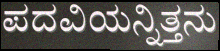
ಪದವಿಯನ್ನಿತ್ತನು